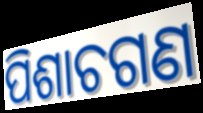
ପିଶାଚଗଣ